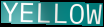
YELLOW